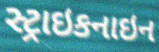
સ્ટ્રાઇકનાઇન